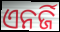
ଏନର୍ଜି